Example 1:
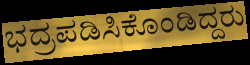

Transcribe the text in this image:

ಭದ್ರಪಡಿಸಿಕೊಂಡಿದ್ದರು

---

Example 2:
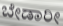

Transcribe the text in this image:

ಬೇಡಾರೀ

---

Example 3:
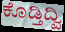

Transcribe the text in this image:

ಕೊಡ್ತಿದ್ವಿ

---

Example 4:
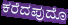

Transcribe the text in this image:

ಕರೆದಪುದೊ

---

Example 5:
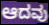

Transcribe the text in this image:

ಆದವು